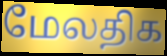
மேலதிக